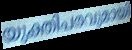
യുക്തിപരവുമായി